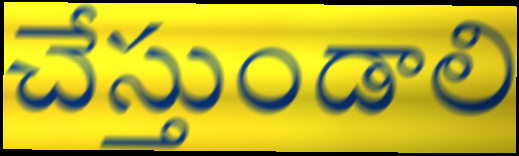
చేస్తుండాలి